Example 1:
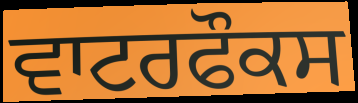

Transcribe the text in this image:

ਵਾਟਰਫੌਕਸ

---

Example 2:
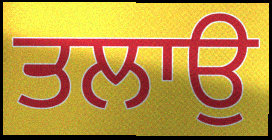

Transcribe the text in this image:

ਤਲਾਉ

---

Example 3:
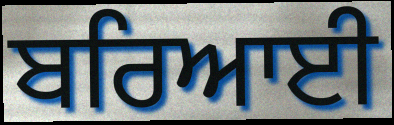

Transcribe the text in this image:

ਬਰਿਆਈ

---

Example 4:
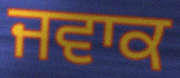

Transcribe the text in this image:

ਜਵਾਕ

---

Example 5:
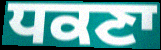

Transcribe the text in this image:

ਧਕਣਾ